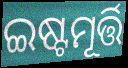
ଇଷ୍ଟମୂର୍ତ୍ତି